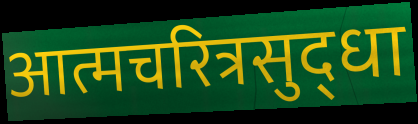
आत्मचरित्रसुद्धा